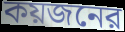
কয়জনের